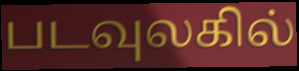
படவுலகில்